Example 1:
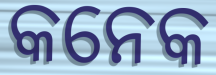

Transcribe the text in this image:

କନେକ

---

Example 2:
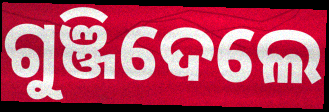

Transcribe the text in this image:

ଗୁଞ୍ଜିଦେଲେ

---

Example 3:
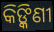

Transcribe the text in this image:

କିଙ୍କିଣୀ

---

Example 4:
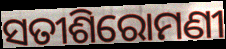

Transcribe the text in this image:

ସତୀଶିରୋମଣୀ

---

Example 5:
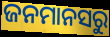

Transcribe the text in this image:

ଜନମାନସରୁ